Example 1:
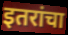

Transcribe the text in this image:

इतरांचा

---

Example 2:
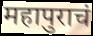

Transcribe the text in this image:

महापुराचं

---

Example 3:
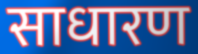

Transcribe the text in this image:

साधारण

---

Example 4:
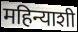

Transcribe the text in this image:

महिन्याशी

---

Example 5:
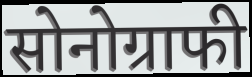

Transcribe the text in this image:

सोनोग्राफी